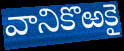
వానికొఱకై